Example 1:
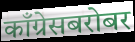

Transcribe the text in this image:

काँग्रेसबरोबर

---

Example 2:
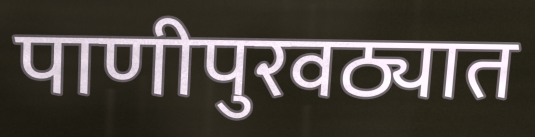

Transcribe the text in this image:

पाणीपुरवठ्यात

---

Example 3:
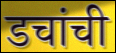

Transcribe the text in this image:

डचांची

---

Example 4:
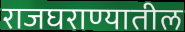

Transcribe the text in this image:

राजघराण्यातील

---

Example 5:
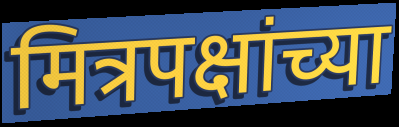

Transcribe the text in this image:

मित्रपक्षांच्या